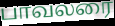
பாவலரை